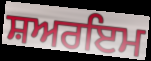
ਸ਼ਅਰਇਮ